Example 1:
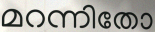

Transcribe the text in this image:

മറന്നിതോ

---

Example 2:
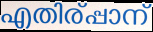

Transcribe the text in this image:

എതിര്പ്പാന്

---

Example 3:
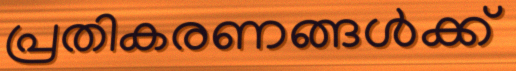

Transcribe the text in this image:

പ്രതികരണങ്ങൾക്ക്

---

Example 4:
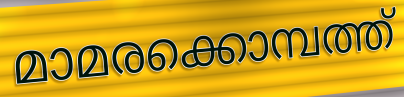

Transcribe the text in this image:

മാമരക്കൊമ്പത്ത്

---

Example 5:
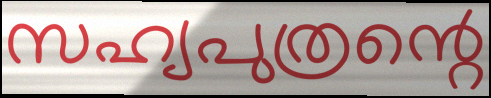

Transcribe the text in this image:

സഹ്യപുത്രന്റെ